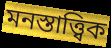
মনস্তাত্ত্বিক